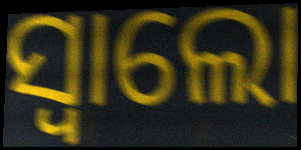
ସ୍ବାଲୋ